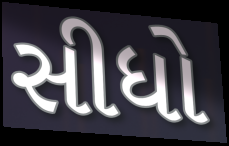
સીધો